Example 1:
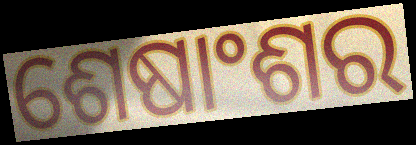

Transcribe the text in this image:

ଶେଷାଂଶର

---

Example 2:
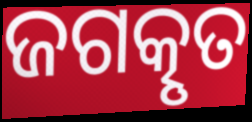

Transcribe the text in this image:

ଜଗତ୍କୃତ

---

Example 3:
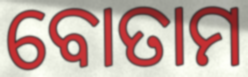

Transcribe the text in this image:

ବୋତାମ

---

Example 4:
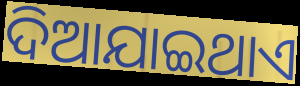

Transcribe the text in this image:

ଦିଆଯାଇଥାଏ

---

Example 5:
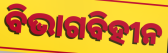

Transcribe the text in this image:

ବିଭାଗବିହୀନ